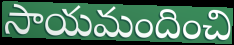
సాయమందించి